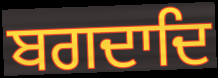
ਬਗਦਾਦਿ